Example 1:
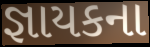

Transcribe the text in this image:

જ્ઞાયકના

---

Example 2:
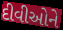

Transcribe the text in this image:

દીવીઓને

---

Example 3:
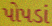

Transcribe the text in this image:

પોપડાં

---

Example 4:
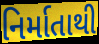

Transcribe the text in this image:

નિર્માતાથી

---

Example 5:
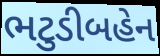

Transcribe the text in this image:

ભટુડીબહેન